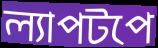
ল্যাপটপে